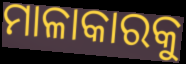
ମାଳାକାରକୁ